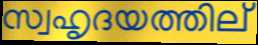
സ്വഹൃദയത്തില്